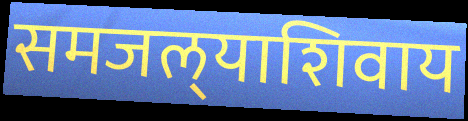
समजल्याशिवाय